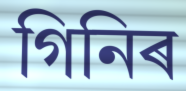
গিনিৰ